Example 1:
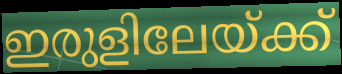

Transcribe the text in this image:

ഇരുളിലേയ്ക്ക്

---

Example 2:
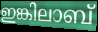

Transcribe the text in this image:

ഇങ്കിലാബ്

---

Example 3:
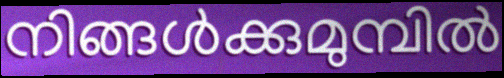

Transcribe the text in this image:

നിങ്ങൾക്കുമുമ്പിൽ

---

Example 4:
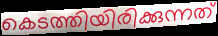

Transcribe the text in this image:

കെടത്തിയിരിക്കുന്നത്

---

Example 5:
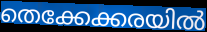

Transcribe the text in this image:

തെക്കേക്കരയിൽ